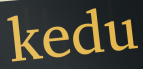
kedu